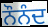
ਨੌਨੰਦ